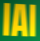
IAI